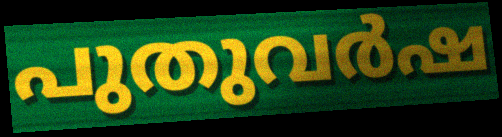
പുതുവർഷ